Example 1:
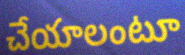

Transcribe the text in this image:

చేయాలంటూ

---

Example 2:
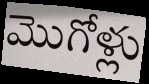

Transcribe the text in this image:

మొగోళ్లు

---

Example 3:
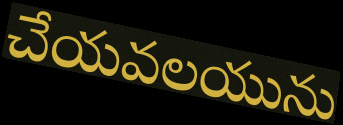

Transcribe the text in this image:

చేయవలయును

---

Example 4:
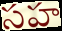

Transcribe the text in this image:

సహ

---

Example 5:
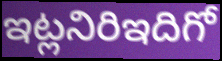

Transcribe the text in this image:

ఇట్లనిరిఇదిగో